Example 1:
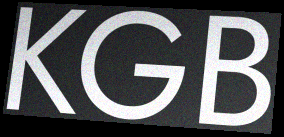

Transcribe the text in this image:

KGB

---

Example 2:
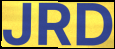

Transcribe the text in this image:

JRD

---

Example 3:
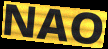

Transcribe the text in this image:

NAO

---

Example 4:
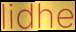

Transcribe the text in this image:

lidhe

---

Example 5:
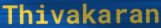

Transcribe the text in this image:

Thivakaran